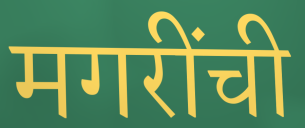
मगरींची